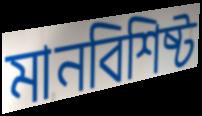
মানবিশিষ্ট